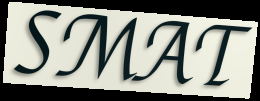
SMAT